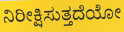
ನಿರೀಕ್ಷಿಸುತ್ತದೆಯೋ